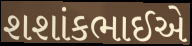
શશાંકભાઈએ